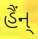
હૈંન્